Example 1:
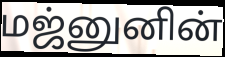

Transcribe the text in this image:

மஜ்னுனின்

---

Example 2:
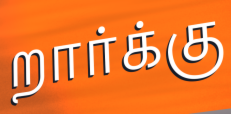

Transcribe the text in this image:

றார்க்கு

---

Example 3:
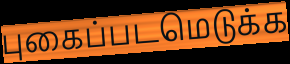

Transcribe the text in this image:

புகைப்படமெடுக்க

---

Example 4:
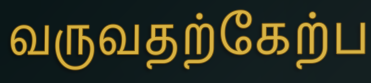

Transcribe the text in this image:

வருவதற்கேற்ப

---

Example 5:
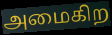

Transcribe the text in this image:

அமைகிற